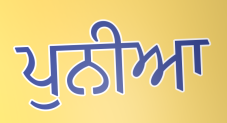
ਪੁਨੀਆ